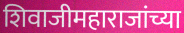
शिवाजीमहाराजांच्या